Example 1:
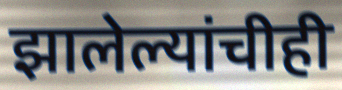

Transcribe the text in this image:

झालेल्यांचीही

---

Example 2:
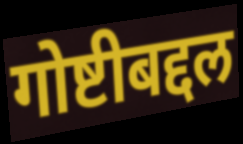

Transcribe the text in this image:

गोष्टीबद्दल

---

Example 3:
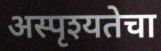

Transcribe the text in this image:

अस्पृश्यतेचा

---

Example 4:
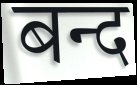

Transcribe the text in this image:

बन्द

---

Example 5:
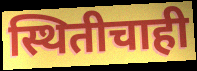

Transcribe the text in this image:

स्थितीचाही